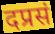
दप्रसं